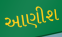
આણીશ